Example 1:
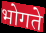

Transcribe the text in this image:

भोगते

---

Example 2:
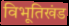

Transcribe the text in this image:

विभूतिखंड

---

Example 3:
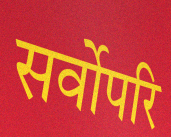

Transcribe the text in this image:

सर्वोपरि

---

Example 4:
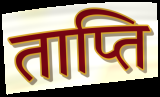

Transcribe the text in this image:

ताप्ति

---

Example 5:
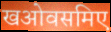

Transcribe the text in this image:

खओवसमिए